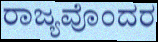
ರಾಜ್ಯವೊಂದರ